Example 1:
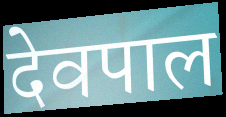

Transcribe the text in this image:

देवपाल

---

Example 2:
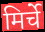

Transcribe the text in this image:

मिर्चे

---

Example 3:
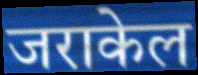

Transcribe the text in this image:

जराकेल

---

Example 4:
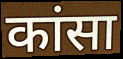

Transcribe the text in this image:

कांसा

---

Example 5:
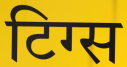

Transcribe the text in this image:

टिग्स